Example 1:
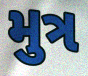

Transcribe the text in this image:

મુત્ર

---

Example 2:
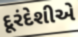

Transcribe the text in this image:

દૂરંદેશીએ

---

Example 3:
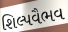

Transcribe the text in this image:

શિલ્પવૈભવ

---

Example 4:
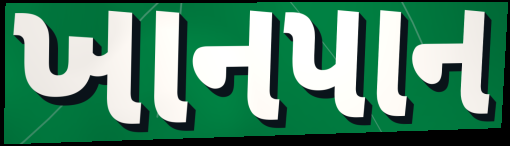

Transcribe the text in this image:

ખાનપાન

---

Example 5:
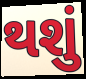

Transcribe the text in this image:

થશું